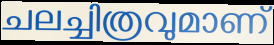
ചലച്ചിത്രവുമാണ്